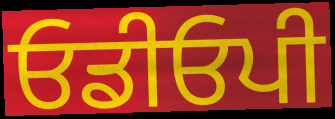
ਓਡੀਓਪੀ